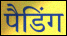
पैडिंग